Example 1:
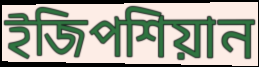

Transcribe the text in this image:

ইজিপশিয়ান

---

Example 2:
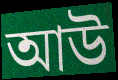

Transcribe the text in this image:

আউ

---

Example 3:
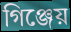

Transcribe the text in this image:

গিঞ্জেয়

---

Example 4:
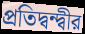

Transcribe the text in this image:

প্রতিদ্বন্দ্বীর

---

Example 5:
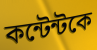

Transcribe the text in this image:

কন্টেন্টকে